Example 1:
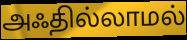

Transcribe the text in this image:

அஃதில்லாமல்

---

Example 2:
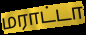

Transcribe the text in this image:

மராட்டா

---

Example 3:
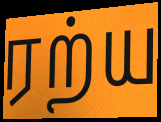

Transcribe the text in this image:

ரற்ய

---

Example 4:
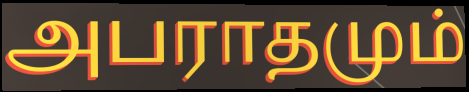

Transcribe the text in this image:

அபராதமும்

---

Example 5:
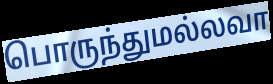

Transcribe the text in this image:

பொருந்துமல்லவா